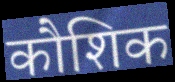
कौशिक